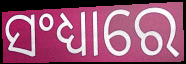
ସଂଧ୍ଯାରେ